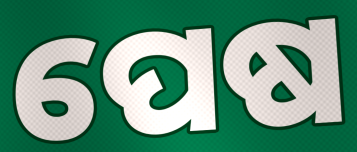
ପେଷ